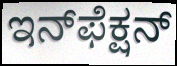
ಇನ್‌ಫೆಕ್ಷನ್